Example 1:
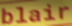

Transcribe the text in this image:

blair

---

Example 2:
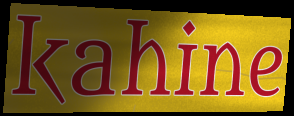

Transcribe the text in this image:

kahine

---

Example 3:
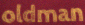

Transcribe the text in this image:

oldman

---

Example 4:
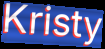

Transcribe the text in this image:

Kristy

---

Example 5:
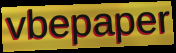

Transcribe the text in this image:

vbepaper